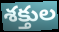
శక్తుల